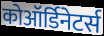
कोऑर्डिनेटर्स